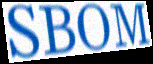
SBOM